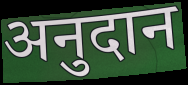
अनुदान